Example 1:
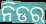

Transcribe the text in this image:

ନିଡର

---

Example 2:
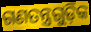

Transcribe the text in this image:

ଗଣତନ୍ତ୍ରଗୁଡ଼ିକ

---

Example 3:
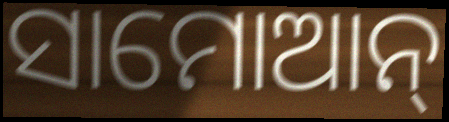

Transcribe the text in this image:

ସାମୋଆନ୍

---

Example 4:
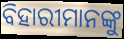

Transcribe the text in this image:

ବିହାରୀମାନଙ୍କୁ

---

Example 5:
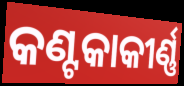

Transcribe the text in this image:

କଣ୍ଟକାକୀର୍ଣ୍ଣ